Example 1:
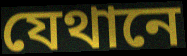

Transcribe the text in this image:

যেথানে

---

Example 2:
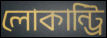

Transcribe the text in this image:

লোকান্ট্রি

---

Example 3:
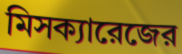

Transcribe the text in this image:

মিসক্যারেজের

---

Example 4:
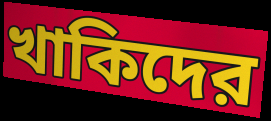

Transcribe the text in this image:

খাকিদের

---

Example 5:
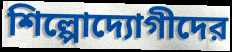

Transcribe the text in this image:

শিল্পোদ্যোগীদের